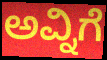
ಅವ್ನಿಗೆ